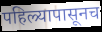
पहिल्यापासूनच